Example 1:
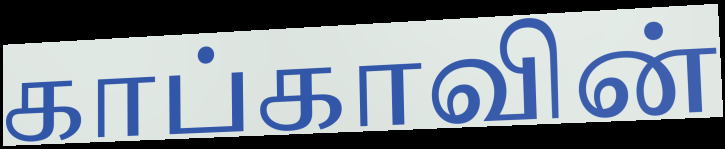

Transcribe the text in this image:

காப்காவின்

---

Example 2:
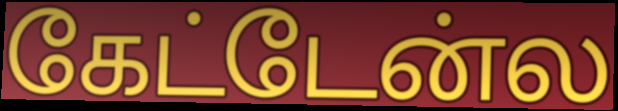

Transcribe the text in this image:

கேட்டேன்ல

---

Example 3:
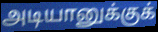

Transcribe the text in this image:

அடியானுக்குக்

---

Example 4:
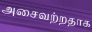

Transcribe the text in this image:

அசைவற்றதாக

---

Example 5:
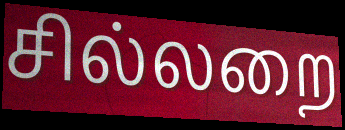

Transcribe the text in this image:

சில்லறை